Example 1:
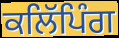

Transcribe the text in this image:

ਕਲਿੱਪਿੰਗ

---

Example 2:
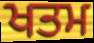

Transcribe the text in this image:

ਖਤਮ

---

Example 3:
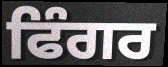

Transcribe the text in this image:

ਫਿੰਗਰ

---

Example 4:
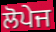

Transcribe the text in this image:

ਲੋਪੇਜ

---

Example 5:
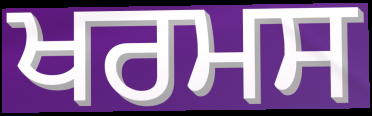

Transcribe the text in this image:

ਖਰਮਸ